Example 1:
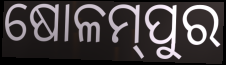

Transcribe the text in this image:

ଷୋଳମ୍‌ପୁର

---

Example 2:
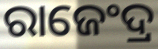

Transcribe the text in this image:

ରାଜେଂଦ୍ର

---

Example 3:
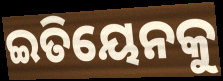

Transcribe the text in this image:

ଇତିୟେନକୁ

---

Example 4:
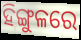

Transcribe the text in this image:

ହିଙ୍ଗୁଳରେ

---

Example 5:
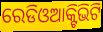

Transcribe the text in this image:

ରେଡିଓଆକ୍ଟିଭିଟି